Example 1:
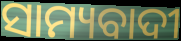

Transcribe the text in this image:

ସାମ୍ୟବାଦୀ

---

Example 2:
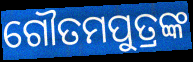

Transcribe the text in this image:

ଗୌତମପୁତ୍ରଙ୍କ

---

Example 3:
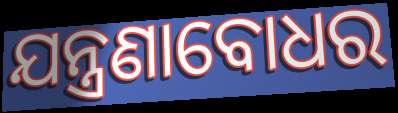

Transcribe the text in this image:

ଯନ୍ତ୍ରଣାବୋଧର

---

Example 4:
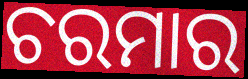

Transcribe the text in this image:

ଚରମାର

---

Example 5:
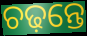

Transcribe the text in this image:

ଚଢ଼ନ୍ତେ